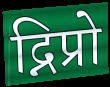
द्निप्रो